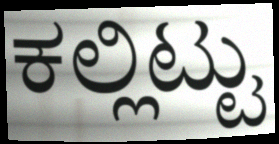
ಕಲ್ಲಿಟ್ಟು